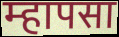
म्हापसा